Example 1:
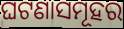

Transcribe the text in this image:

ଘଟଣାସମୂହର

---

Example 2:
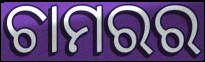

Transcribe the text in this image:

ଚାମରର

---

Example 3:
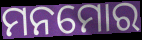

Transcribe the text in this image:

ମନମୋର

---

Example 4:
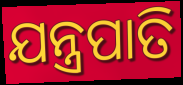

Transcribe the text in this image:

ଯନ୍ତ୍ରପାତି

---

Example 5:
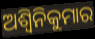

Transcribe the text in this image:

ଅଶ୍ୱିନିକୁମାର